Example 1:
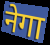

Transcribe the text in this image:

नेगा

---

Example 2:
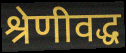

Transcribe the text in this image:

श्रेणीवद्ध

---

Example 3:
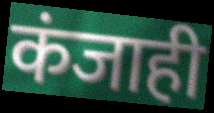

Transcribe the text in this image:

कंजाही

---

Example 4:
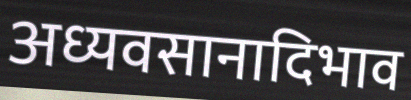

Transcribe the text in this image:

अध्यवसानादिभाव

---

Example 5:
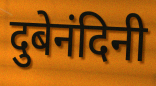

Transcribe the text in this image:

दुबेनंदिनी